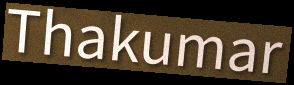
Thakumar